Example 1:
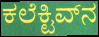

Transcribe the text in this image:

ಕಲೆಕ್ಟಿವ್‌ನ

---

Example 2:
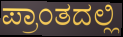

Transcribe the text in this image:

ಪ್ರಾಂತದಲ್ಲಿ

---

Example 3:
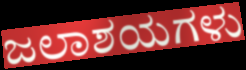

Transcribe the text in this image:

ಜಲಾಶಯಗಳು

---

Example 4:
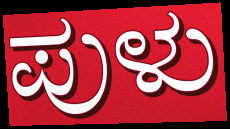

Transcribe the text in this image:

ಪುಳು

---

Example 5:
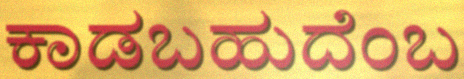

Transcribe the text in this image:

ಕಾಡಬಹುದೆಂಬ